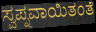
ಸ್ವಪ್ನವಾಯಿತಂತೆ